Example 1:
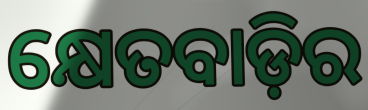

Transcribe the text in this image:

କ୍ଷେତବାଡ଼ିର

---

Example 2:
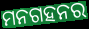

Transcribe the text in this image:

ମନଗହନର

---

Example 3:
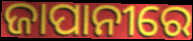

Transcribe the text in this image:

ଜାପାନୀରେ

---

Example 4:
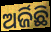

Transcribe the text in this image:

ଅର୍ଜିଛି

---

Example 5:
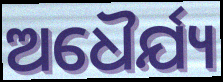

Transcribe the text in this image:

ଅଧୈର୍ଯ୍ୟ